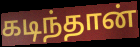
கடிந்தான்